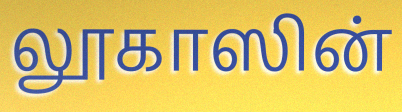
லூகாஸின்